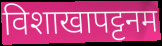
विशाखापट्टनम